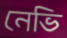
নেভি